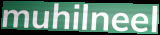
muhilneel